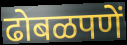
ढोबळपणें